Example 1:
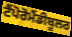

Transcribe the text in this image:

ਟੈਂਪੋਰੋਮੈਂਡੀਬੂਲਰ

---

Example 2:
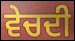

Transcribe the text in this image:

ਵੇਚਦੀ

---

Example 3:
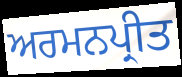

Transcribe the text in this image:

ਅਰਮਨਪ੍ਰੀਤ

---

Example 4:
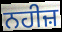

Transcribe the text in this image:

ਨਹੀਜ਼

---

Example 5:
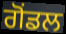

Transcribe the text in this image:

ਗੋਂਡਲ